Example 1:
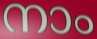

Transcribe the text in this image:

നാം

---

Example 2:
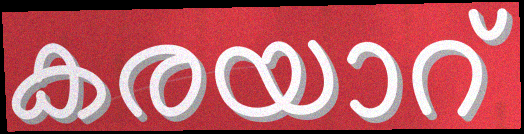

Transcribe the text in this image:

കരയാറ്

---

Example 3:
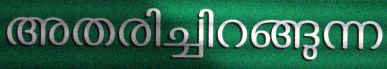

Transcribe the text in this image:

അതരിച്ചിറങ്ങുന്ന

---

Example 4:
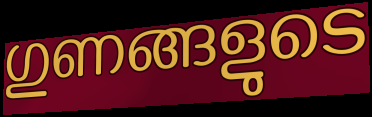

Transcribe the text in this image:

ഗുണങ്ങളുടെ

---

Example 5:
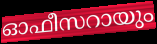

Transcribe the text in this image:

ഓഫീസറായും